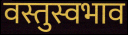
वस्तुस्वभाव